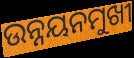
ଉନ୍ନୟନମୁଖୀ